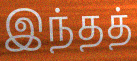
இந்தத்